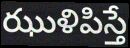
ఝుళిపిస్తే